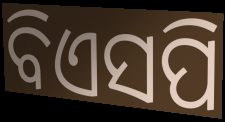
ବିଏସପି